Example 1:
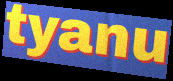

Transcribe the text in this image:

tyanu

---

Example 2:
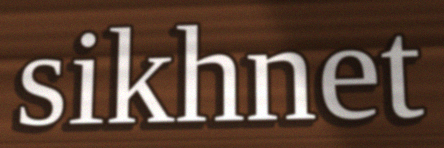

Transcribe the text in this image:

sikhnet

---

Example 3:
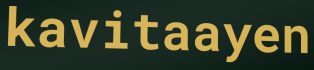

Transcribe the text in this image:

kavitaayen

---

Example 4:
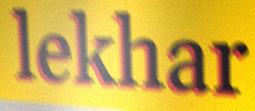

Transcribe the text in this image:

lekhar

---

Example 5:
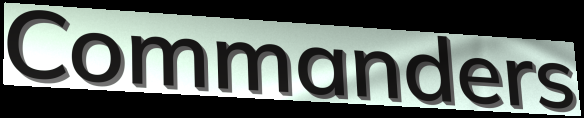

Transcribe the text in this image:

Commanders